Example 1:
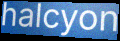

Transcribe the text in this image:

halcyon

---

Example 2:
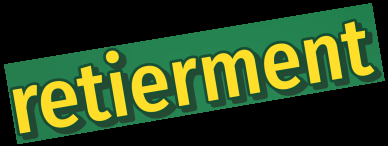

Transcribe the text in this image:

retierment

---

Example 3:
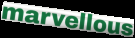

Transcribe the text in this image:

marvellous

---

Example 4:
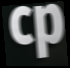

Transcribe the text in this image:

cp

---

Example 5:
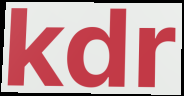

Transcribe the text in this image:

kdr